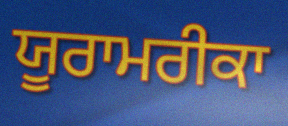
ਯੂਰਾਮਰੀਕਾ